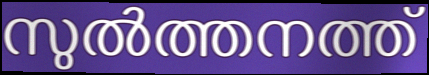
സുൽത്തനത്ത്